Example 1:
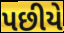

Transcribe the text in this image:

પછીયે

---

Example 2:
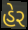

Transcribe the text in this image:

હેર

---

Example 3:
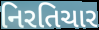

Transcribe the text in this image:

નિરતિચાર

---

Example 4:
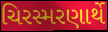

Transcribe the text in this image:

ચિરસ્મરણાર્થે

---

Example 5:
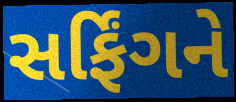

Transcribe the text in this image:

સર્ફિંગને